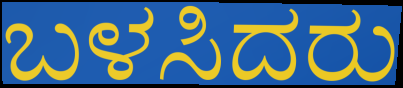
ಬಳಸಿದರು